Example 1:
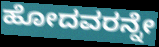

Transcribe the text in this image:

ಹೋದವರನ್ನೇ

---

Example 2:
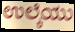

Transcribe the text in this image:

ಉಲ್ಕೆಯು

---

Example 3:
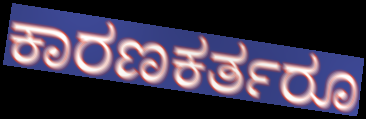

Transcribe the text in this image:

ಕಾರಣಕರ್ತರೂ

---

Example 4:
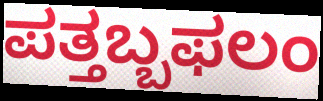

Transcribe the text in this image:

ಪತ್ತಬ್ಬಫಲಂ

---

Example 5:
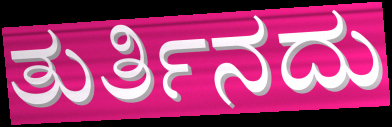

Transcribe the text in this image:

ತುರ್ತಿನದು